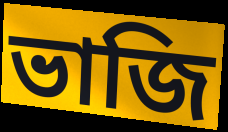
ভাজি